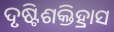
ଦୃଷ୍ଟିଶକ୍ତିହ୍ରାସ